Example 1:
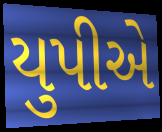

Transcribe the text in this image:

યુપીએ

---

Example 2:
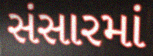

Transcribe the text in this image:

સંસારમાં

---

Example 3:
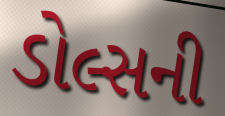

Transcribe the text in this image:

ડોલ્સની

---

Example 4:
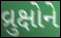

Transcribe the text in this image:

વ્રુક્ષોને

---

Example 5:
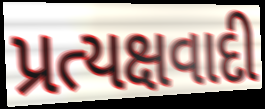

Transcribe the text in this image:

પ્રત્યક્ષવાદી